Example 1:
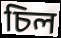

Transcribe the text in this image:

চিল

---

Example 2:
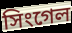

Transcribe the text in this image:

সিংগেল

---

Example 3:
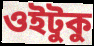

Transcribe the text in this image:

ওইটুকু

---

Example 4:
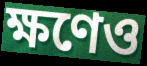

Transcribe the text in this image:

ক্ষণেও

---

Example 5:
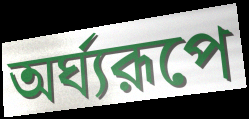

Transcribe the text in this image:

অর্ঘ্যরূপে